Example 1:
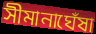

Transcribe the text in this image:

সীমানাঘেঁষা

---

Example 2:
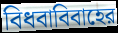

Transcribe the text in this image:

বিধবাবিবাহের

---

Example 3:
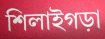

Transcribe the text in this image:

শিলাইগড়া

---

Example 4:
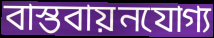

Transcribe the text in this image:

বাস্তবায়নযোগ্য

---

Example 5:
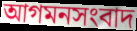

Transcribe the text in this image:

আগমনসংবাদ